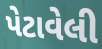
પેટાવેલી